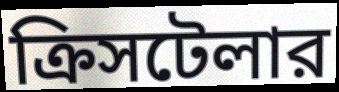
ক্রিসটেলার